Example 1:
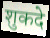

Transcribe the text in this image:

शुकदे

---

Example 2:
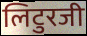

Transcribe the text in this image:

लिटुरजी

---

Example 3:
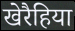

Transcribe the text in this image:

खेरैहिया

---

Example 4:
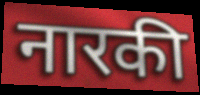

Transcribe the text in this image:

नारकी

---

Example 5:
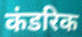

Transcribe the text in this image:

कंडरिक